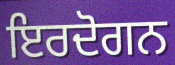
ਇਰਦੋਗਨ